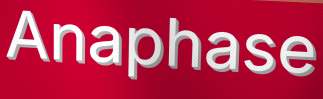
Anaphase